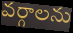
వర్గాలను